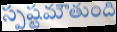
స్పష్టమౌతుంది